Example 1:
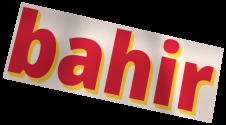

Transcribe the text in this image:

bahir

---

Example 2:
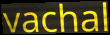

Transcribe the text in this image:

vachal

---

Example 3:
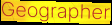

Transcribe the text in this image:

Geographer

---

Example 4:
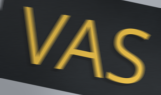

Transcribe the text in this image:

VAS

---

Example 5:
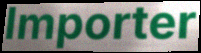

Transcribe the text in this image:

Importer